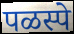
पळस्पे